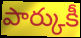
పార్కుకీ